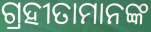
ଗ୍ରହୀତାମାନଙ୍କ